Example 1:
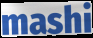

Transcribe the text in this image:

mashi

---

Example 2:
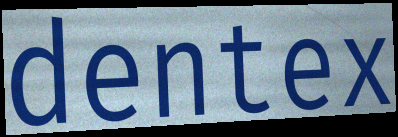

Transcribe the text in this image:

dentex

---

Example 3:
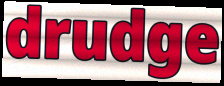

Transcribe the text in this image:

drudge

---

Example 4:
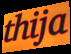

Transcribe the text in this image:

thija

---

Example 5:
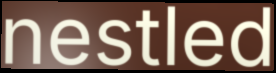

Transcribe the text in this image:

nestled